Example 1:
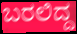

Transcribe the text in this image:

ಬರಲಿದ್ದ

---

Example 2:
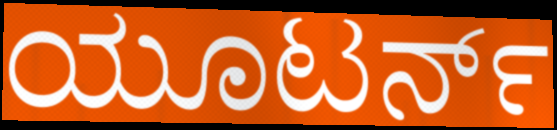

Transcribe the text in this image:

ಯೂಟರ್ನ್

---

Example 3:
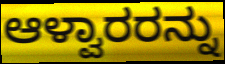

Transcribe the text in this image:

ಆಳ್ವಾರರನ್ನು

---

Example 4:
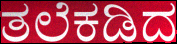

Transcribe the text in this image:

ತಲೆಕಡಿದ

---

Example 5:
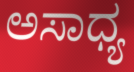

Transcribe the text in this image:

ಅಸಾಧ್ಯ